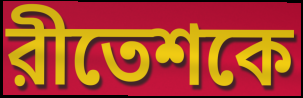
রীতেশকে